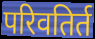
परिवतिर्त